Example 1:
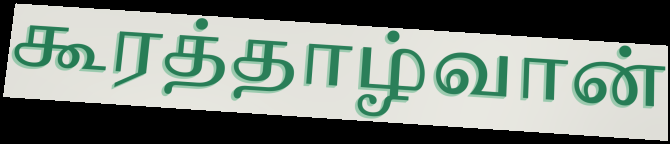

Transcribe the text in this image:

கூரத்தாழ்வான்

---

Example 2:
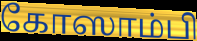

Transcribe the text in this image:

கோஸாம்பி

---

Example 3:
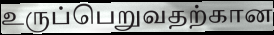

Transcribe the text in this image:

உருப்பெறுவதற்கான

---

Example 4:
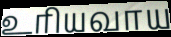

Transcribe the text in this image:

உரியவாய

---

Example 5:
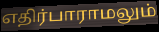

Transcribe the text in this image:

எதிர்பாராமலும்